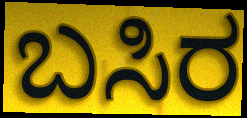
ಬಸಿರ